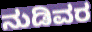
ನುಡಿವರ